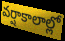
వర్షాకాలాల్లో